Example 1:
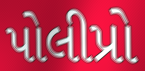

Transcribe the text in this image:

પોલીપ્રો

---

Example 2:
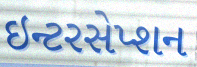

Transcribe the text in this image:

ઇન્ટરસેપ્શન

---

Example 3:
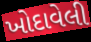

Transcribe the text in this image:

ખોદાવેલી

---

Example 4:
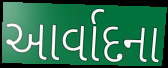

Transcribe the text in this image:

આર્વાદના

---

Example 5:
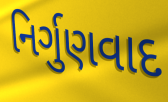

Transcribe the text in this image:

નિર્ગુણવાદ